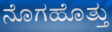
ನೊಗಹೊತ್ತು